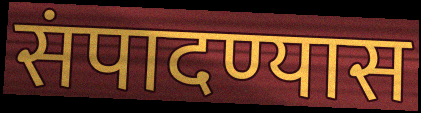
संपादण्यास